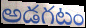
అడగటం